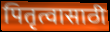
पितृत्वासाठी